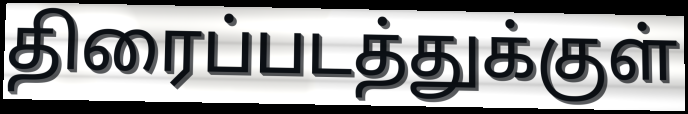
திரைப்படத்துக்குள்